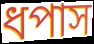
ধপাস